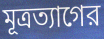
মূত্রত্যাগের